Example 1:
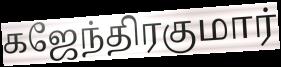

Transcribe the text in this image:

கஜேந்திரகுமார்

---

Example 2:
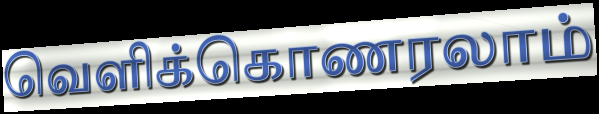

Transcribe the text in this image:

வெளிக்கொணரலாம்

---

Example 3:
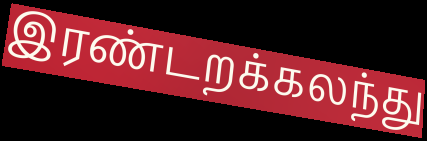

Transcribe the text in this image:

இரண்டறக்கலந்து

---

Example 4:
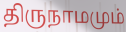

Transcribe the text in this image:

திருநாமமும்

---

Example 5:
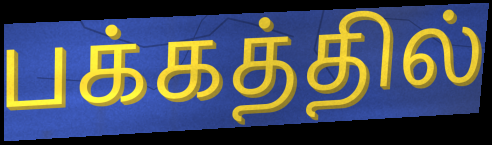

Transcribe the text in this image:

பக்கத்தில்